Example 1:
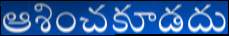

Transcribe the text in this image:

ఆశించకూడదు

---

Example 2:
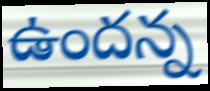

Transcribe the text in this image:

ఉందన్న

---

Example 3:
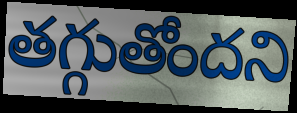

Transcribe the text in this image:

తగ్గుతోందని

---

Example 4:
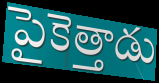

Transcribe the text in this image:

పైకెత్తాడు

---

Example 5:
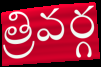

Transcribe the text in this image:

త్రివర్గ